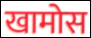
खामोस